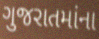
ગુજરાતમાંના